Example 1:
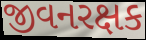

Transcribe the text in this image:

જીવનરક્ષક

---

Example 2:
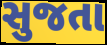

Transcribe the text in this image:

સુજતા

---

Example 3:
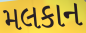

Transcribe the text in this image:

મલકાન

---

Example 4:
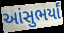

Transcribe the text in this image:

આંસુભર્યાં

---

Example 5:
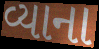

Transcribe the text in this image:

વ્યાના